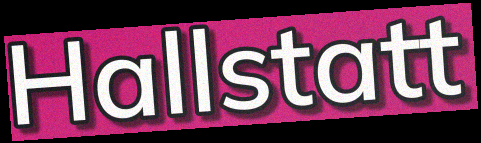
Hallstatt